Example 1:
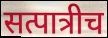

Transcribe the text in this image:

सत्पात्रीच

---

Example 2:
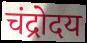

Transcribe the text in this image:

चंद्रोदय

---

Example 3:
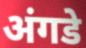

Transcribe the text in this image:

अंगडे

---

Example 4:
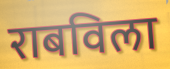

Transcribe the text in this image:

राबविला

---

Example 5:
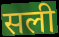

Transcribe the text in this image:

सली